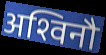
अश्विनौ